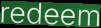
redeem